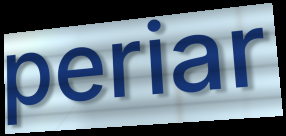
periar